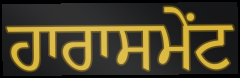
ਹਾਰਾਸਮੇਂਟ